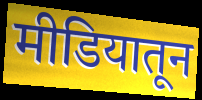
मीडियातून